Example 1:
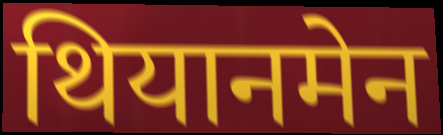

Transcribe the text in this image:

थियानमेन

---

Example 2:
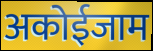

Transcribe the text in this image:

अकोईजाम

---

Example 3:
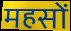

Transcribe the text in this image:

महसों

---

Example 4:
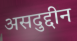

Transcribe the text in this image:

असदुद्दीन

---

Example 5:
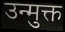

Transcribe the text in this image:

उन्मुक्त